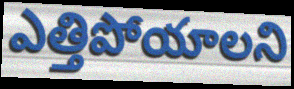
ఎత్తిపోయాలని